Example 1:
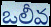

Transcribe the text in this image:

ఒలీవ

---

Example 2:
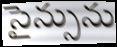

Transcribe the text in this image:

సైన్సును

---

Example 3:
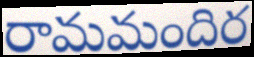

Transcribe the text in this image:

రామమందిర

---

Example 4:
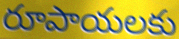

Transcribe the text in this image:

రూపాయలకు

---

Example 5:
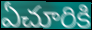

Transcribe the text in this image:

ఏచూరికి